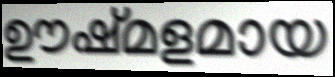
ഊഷ്‌മളമായ